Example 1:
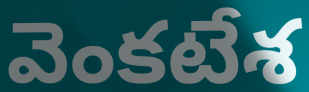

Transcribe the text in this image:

వెంకటేశ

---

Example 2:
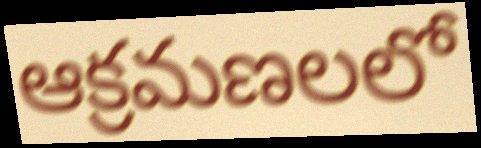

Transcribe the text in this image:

ఆక్రమణలలో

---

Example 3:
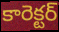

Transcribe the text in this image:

కారెక్టర్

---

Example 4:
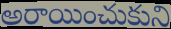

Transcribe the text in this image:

అరాయించుకుని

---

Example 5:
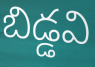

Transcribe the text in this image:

బిడ్డవి